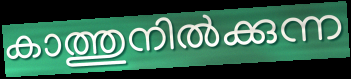
കാത്തുനിൽക്കുന്ന